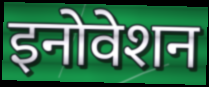
इनोवेशन